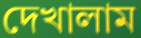
দেখালাম